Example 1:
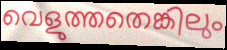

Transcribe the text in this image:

വെളുത്തതെങ്കിലും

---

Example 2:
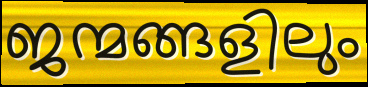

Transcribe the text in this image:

ജന്മങ്ങളിലും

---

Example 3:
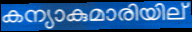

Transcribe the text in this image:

കന്യാകുമാരിയില്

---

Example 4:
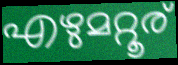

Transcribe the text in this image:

എഴുമറ്റൂര്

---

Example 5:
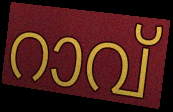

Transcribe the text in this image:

റാവ്